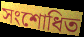
সংশোধিত